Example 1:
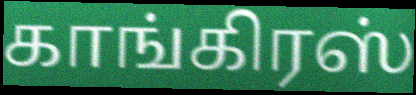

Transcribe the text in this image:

காங்கிரஸ்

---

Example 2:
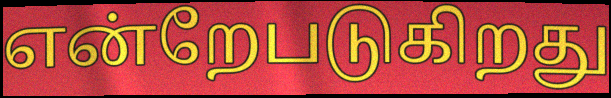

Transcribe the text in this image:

என்றேபடுகிறது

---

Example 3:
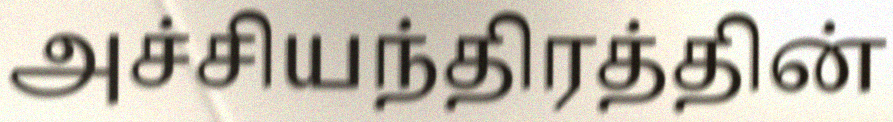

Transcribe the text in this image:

அச்சியந்திரத்தின்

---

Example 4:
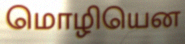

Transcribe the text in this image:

மொழியென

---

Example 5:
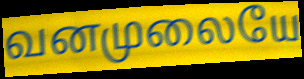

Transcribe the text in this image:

வனமுலையே